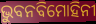
ଭୁବନବିମୋହିନୀ